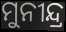
ମୁନୀନ୍ଦ୍ର